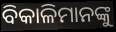
ବିକାଳିମାନଙ୍କୁ